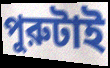
পুরুটাই